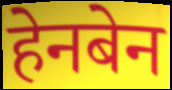
हेनबेन